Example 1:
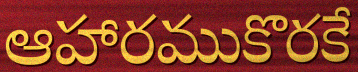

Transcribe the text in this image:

ఆహారముకొరకే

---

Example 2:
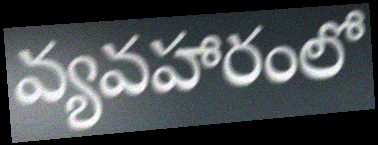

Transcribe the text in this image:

వ్యవహారంలో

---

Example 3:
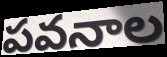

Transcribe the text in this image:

పవనాల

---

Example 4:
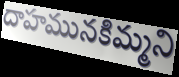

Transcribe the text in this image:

దాహమునకిమ్మని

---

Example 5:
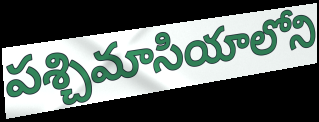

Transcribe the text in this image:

పశ్చిమాసియాలోని